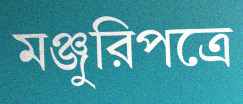
মঞ্জুরিপত্রে